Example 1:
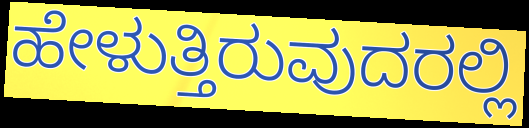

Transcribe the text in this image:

ಹೇಳುತ್ತಿರುವುದರಲ್ಲಿ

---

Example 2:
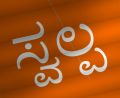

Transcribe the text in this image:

ಸ್ವಲ್ಪ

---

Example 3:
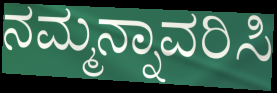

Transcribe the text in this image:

ನಮ್ಮನ್ನಾವರಿಸಿ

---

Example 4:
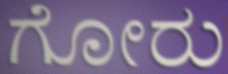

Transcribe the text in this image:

ಗೋರು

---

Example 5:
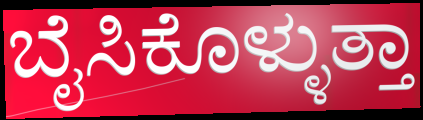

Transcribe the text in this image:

ಬೈಸಿಕೊಳ್ಳುತ್ತಾ